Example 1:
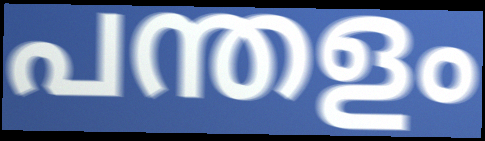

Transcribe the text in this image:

പന്തളം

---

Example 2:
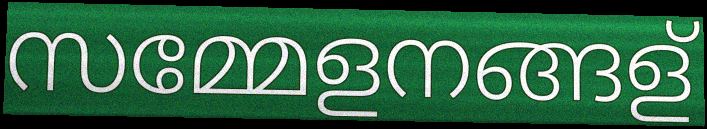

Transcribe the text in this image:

സമ്മേളനങ്ങള്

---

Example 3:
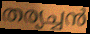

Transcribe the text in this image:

തര്യച്ചൻ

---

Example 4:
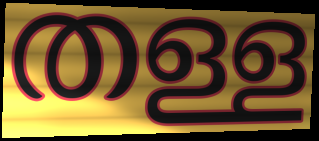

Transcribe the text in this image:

തള്ള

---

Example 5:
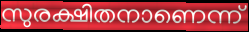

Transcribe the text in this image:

സുരക്ഷിതനാണെന്ന്